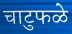
चाटुफळे